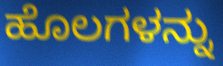
ಹೊಲಗಳನ್ನು